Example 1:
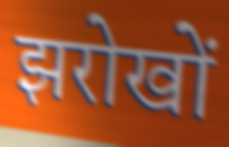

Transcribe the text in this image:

झरोखों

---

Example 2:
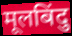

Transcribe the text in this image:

मूलबिंदु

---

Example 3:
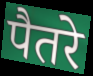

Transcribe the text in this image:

पैतरे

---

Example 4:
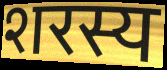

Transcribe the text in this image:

शरस्य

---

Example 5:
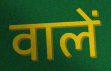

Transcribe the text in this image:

वालें